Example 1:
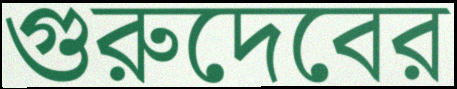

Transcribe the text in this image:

গুরুদেবের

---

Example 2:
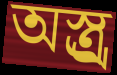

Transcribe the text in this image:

অস্ত্র্র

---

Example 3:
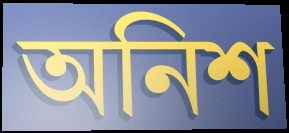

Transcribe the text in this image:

অনিশ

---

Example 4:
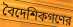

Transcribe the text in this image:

বৈদেশিকগণের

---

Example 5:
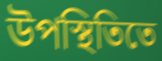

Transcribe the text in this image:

উপস্থিতিতে